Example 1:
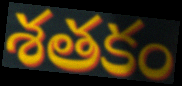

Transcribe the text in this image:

శతకం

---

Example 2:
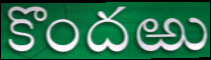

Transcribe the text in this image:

కొందఱు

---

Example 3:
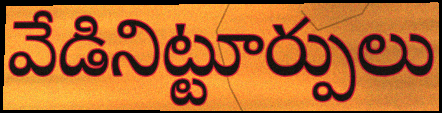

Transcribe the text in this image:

వేడినిట్టూర్పులు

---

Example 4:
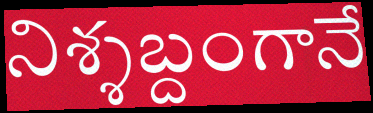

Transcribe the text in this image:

నిశ్శబ్దంగానే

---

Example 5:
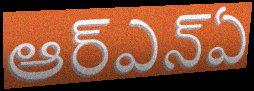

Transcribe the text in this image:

ఆర్ఎన్ఏ